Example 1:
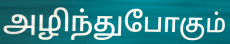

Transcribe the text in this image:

அழிந்துபோகும்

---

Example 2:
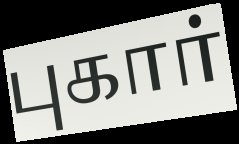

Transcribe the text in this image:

புகார்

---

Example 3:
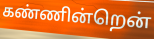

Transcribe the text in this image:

கண்ணின்றென்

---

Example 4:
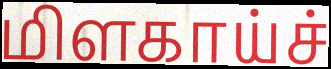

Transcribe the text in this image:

மிளகாய்ச்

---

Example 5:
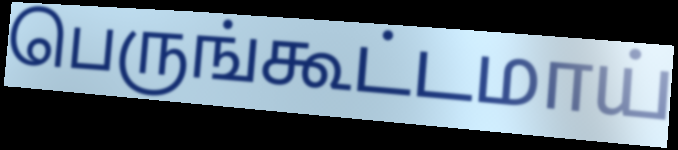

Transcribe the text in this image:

பெருங்கூட்டமாய்